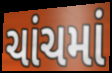
ચાંચમાં